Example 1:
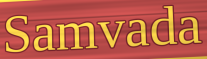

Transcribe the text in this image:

Samvada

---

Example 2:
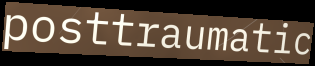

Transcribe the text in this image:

posttraumatic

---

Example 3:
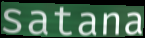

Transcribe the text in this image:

satana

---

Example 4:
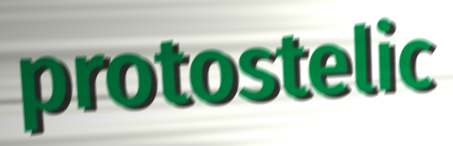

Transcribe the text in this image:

protostelic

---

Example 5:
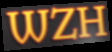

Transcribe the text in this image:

WZH